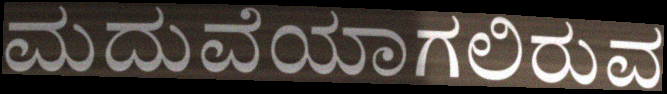
ಮದುವೆಯಾಗಲಿರುವ